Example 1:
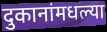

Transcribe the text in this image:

दुकानांमधल्या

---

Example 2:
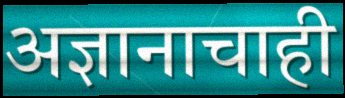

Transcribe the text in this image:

अज्ञानाचाही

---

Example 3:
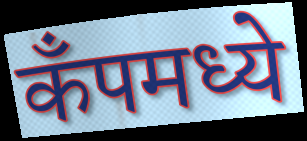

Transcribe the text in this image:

कॅंपमध्ये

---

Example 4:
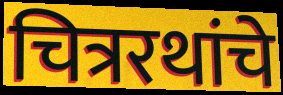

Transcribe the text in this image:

चित्ररथांचे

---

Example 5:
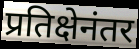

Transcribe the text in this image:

प्रतिक्षेनंतर